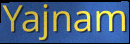
Yajnam